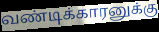
வண்டிக்காரனுக்கு